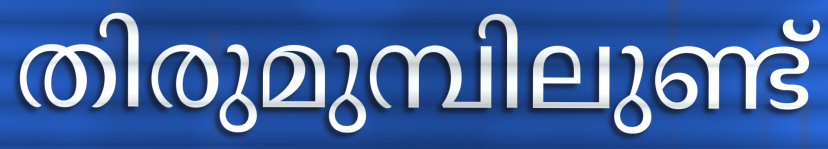
തിരുമുമ്പിലുണ്ട്